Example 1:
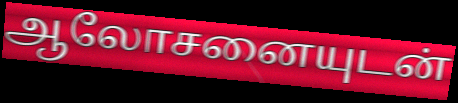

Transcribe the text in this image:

ஆலோசனையுடன்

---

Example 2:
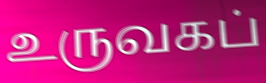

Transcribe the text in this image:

உருவகப்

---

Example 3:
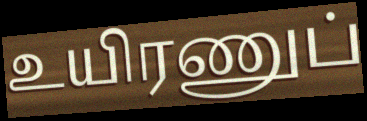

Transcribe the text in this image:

உயிரணுப்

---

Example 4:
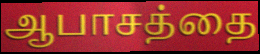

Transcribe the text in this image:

ஆபாசத்தை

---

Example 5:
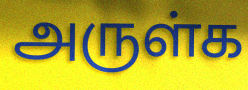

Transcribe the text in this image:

அருள்க